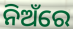
ନିଅଁରେ